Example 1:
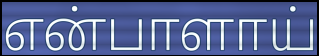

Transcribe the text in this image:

என்பாளாய்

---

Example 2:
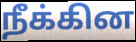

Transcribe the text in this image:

நீக்கின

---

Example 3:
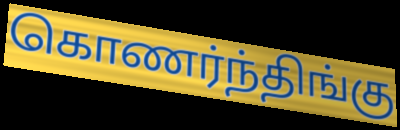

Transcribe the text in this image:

கொணர்ந்திங்கு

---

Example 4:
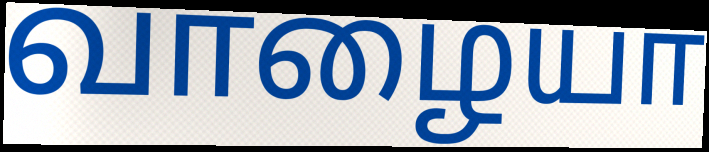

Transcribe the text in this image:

வாழையா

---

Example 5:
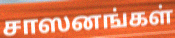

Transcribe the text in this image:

சாஸனங்கள்